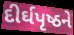
દીર્ઘપૃષ્ઠને